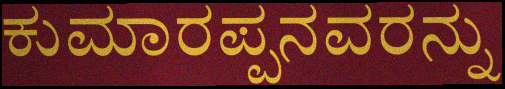
ಕುಮಾರಪ್ಪನವರನ್ನು